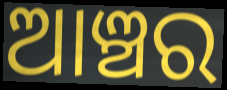
ଆଞ୍ଚର